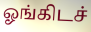
ஓங்கிடச்